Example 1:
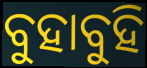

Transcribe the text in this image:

ବୁହାବୁହି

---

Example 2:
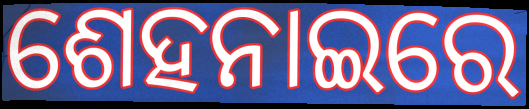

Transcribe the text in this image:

ଶେହନାଇରେ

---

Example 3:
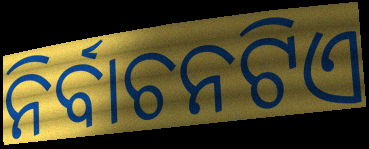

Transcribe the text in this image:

ନିର୍ବାଚନଟିଏ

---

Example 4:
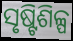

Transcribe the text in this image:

ସୃଷ୍ଟିଶିଳ୍ପ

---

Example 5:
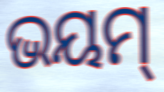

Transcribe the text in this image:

ଭୟମ୍